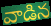
వాడిన